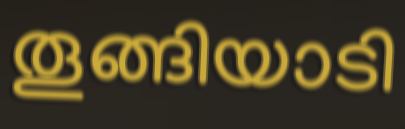
തൂങ്ങിയാടി